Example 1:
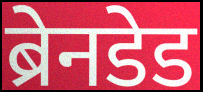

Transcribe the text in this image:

ब्रेनडेड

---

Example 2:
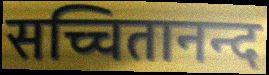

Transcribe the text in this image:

सच्चितानन्द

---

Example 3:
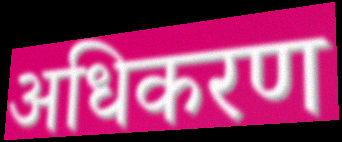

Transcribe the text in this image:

अधिकरण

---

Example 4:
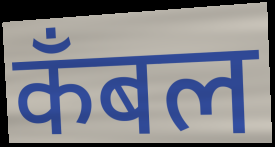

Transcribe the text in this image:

कँबल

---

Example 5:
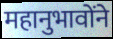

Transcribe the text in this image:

महानुभावोंने